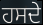
ਹਸਦੇ